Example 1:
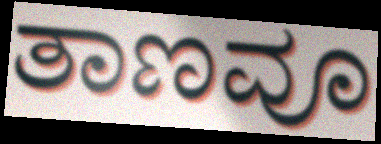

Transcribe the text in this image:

ತಾಣವೂ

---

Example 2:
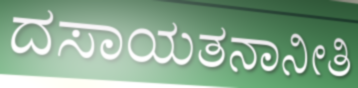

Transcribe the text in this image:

ದಸಾಯತನಾನೀತಿ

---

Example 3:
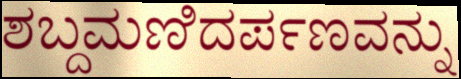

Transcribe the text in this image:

ಶಬ್ದಮಣಿದರ್ಪಣವನ್ನು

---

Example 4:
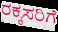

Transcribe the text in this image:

ರಕ್ಕಸರಿಗೆ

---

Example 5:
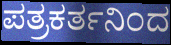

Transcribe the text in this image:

ಪತ್ರಕರ್ತನಿಂದ